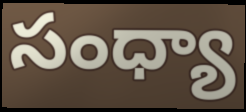
సంధ్యా